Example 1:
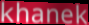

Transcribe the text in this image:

khanek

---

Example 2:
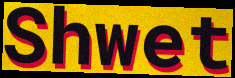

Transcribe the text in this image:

Shwet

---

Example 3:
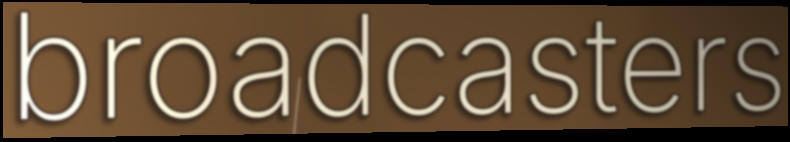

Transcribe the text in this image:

broadcasters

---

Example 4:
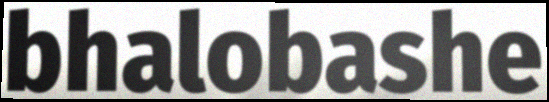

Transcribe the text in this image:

bhalobashe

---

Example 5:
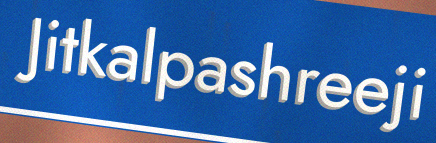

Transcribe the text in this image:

Jitkalpashreeji